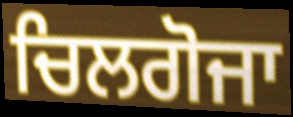
ਚਿਲਗੋਜਾ